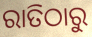
ରାତିଠାରୁ